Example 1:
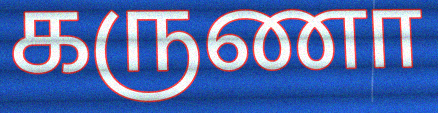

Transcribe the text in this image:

கருணா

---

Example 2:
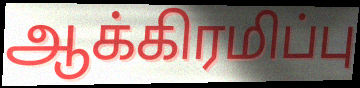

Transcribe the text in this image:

ஆக்கிரமிப்பு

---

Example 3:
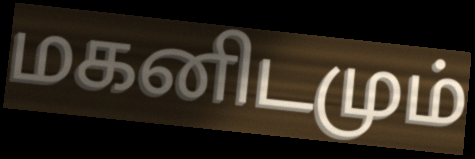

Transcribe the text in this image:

மகனிடமும்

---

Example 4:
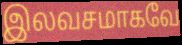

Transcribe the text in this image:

இலவசமாகவே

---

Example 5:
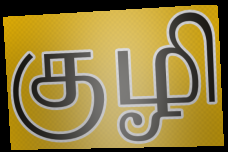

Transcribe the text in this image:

குழி